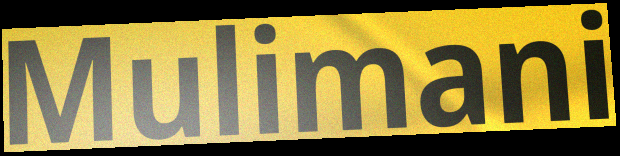
Mulimani